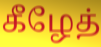
கீழேத்